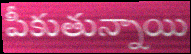
పీకుతున్నాయి